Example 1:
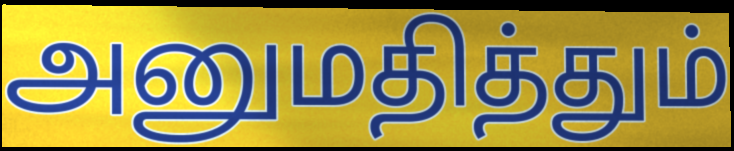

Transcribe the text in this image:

அனுமதித்தும்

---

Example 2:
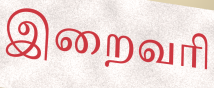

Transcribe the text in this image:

இறைவரி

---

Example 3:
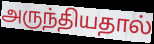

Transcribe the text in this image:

அருந்தியதால்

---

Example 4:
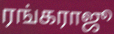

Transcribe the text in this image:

ரங்கராஜூ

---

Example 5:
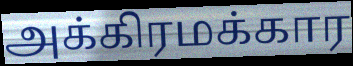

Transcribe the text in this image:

அக்கிரமக்கார